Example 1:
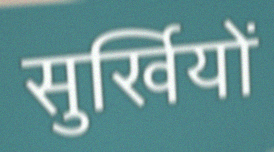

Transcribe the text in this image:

सुर्खियों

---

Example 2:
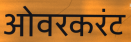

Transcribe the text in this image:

ओवरकरंट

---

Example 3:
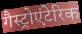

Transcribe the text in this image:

गैस्ट्रोएंटेरिक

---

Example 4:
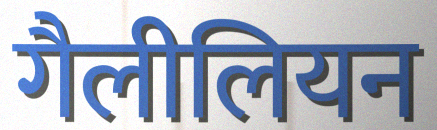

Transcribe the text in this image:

गैलीलियन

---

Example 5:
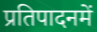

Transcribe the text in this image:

प्रतिपादनमें